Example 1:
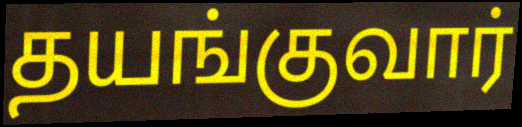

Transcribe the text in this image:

தயங்குவார்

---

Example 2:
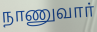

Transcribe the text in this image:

நாணுவார்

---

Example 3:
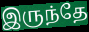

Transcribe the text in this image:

இருந்தே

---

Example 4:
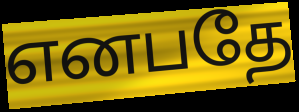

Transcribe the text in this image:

எனபதே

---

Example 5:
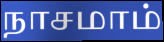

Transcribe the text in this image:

நாசமாம்